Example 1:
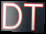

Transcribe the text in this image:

DT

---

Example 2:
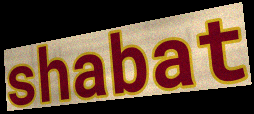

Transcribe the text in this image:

shabat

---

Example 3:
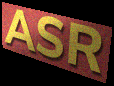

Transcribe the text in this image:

ASR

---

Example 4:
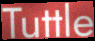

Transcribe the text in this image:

Tuttle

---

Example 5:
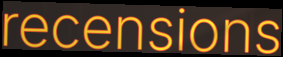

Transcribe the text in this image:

recensions